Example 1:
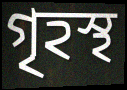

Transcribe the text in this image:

গৃহস্থ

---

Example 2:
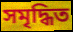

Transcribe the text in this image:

সমৃদ্ধিত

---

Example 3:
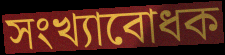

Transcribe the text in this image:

সংখ্যাবোধক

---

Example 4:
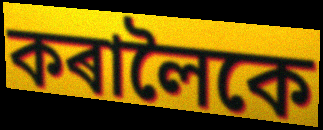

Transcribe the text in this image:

কৰালৈকে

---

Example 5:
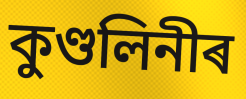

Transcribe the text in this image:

কুণ্ডলিনীৰ